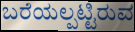
ಬರೆಯಲ್ಪಟ್ಟಿರುವ